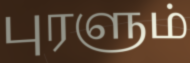
புரளும்